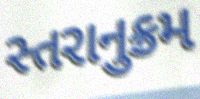
સ્તરાનુક્રમ